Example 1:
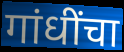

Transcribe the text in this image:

गांधींचा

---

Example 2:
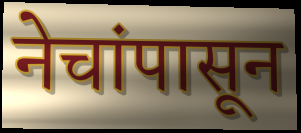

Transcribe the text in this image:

नेचांपासून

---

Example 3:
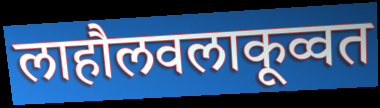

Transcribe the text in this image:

लाहौलवलाकूव्वत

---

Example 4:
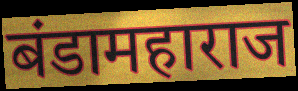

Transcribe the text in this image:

बंडामहाराज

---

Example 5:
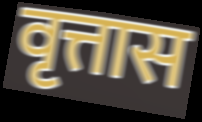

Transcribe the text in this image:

वृत्तास